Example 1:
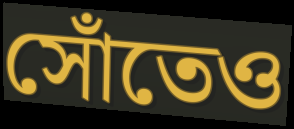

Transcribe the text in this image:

সোঁতেও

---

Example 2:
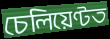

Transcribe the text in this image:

চেলিয়েণ্টত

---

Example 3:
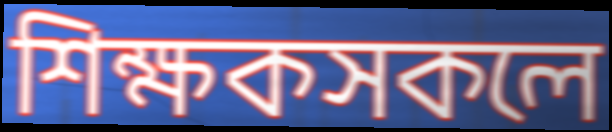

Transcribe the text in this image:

শিক্ষকসকলে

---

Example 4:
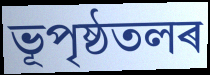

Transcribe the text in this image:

ভূপৃষ্ঠতলৰ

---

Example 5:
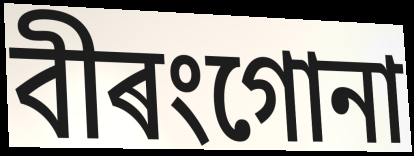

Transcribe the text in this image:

বীৰংগোনা